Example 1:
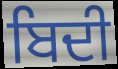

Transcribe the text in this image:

ਬਿਦੀ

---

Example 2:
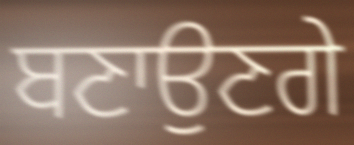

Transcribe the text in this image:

ਬਣਾਉਣਗੇ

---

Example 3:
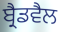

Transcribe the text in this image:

ਬ੍ਰੈਡਵੈਲ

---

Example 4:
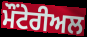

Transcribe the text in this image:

ਮੌਂਟੇਰੀਅਲ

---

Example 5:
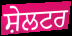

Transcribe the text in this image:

ਸ਼ੇਲਟਰ